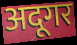
अदूगर